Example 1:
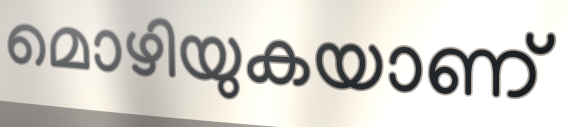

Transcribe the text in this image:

മൊഴിയുകയാണ്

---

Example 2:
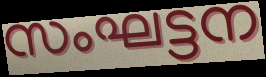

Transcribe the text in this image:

സംഘട്ടന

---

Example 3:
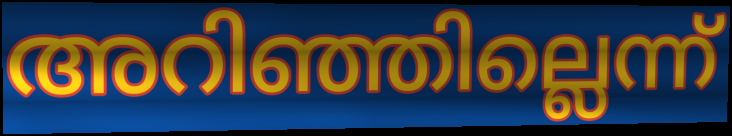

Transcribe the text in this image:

അറിഞ്ഞില്ലെന്ന്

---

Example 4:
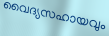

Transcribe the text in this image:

വൈദ്യസഹായവും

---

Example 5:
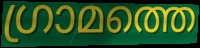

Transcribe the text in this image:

ഗ്രാമത്തെ